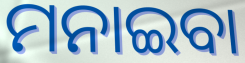
ମନାଇବା